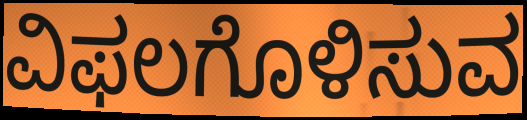
ವಿಫಲಗೊಳಿಸುವ